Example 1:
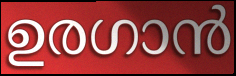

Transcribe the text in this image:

ഉരഗാൻ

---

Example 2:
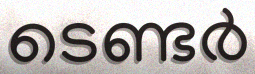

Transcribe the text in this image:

ടെണ്ടർ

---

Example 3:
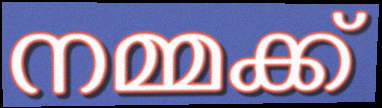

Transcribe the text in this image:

നമ്മക്ക്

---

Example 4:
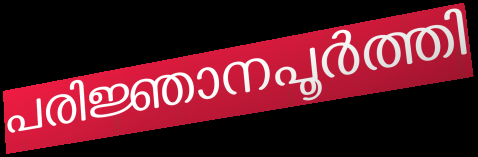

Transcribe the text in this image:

പരിജ്ഞാനപൂർത്തി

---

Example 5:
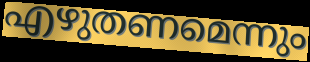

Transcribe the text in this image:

എഴുതണമെന്നും